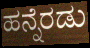
ಹನ್ನೆರಡು